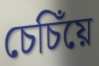
চেচিঁয়ে